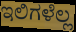
ಇಲಿಗಳೆಲ್ಲ